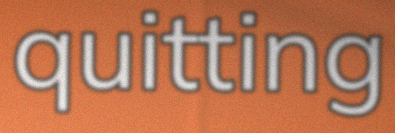
quitting